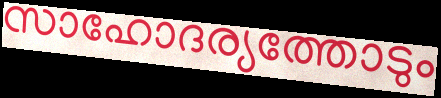
സാഹോദര്യത്തോടും